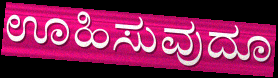
ಊಹಿಸುವುದೂ